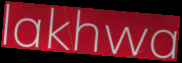
lakhwa